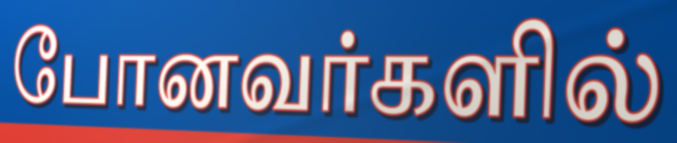
போனவர்களில்